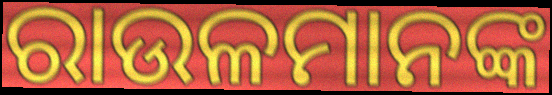
ରାଉଳମାନଙ୍କ